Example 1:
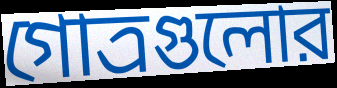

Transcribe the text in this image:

গোত্রগুলোর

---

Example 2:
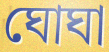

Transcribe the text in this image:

ঘোঘা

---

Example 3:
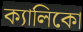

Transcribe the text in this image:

ক্যালিকো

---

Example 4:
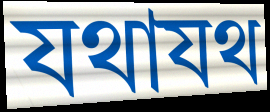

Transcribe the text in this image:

যথাযথ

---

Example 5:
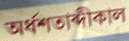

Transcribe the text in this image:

অর্ধশতাব্দীকাল